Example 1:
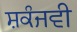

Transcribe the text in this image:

ਸ਼ਕੰਜਵੀ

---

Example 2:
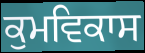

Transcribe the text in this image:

ਕੁਮਵਿਕਾਸ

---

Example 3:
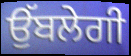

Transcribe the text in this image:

ਉੱਬਲੇਗੀ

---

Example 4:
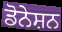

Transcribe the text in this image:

ਡੋਨੇਸ਼ਨ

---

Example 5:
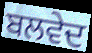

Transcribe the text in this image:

ਬਲਵੇਦ